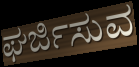
ಘರ್ಜಿಸುವ